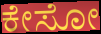
ಕೇಸೋ